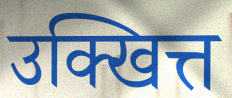
उक्खित्त